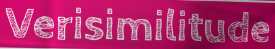
Verisimilitude